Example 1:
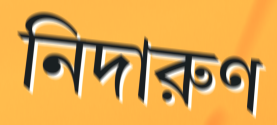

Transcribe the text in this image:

নিদারুণ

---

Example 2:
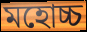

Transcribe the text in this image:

মহোচ্চ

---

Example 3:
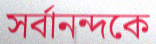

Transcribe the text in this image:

সর্বানন্দকে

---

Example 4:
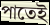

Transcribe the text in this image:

পাতেই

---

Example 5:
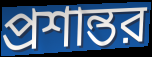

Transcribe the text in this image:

প্রশান্তর